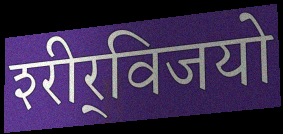
श्रीर्विजयो